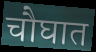
चौघात